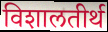
विशालतीर्थ